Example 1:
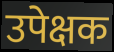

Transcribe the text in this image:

उपेक्षक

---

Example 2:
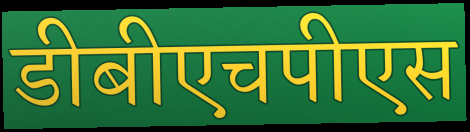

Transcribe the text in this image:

डीबीएचपीएस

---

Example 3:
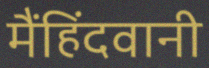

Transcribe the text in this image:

मैंहिंदवानी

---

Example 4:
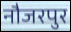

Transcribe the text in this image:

नौजरपुर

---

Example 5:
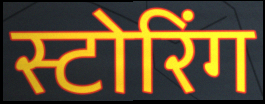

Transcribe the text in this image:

स्टोरिंग